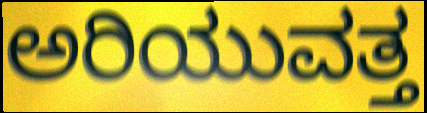
ಅರಿಯುವತ್ತ